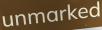
unmarked